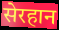
सेरहान